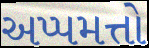
અપ્પમત્તો